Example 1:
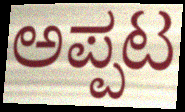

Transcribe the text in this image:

ಅಪ್ಪಟ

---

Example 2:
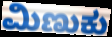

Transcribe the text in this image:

ಮಿಣುಕು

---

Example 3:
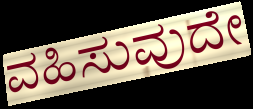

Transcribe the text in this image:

ವಹಿಸುವುದೇ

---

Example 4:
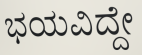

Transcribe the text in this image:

ಭಯವಿದ್ದೇ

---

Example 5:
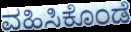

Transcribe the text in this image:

ವಹಿಸಿಕೊಂಡೆ